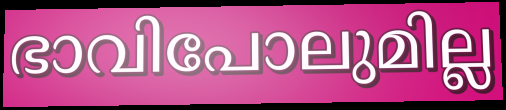
ഭാവിപോലുമില്ല